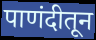
पाणंदीतून